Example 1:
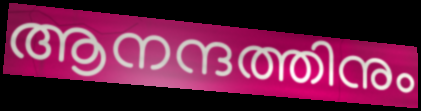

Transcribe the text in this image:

ആനന്ദത്തിനും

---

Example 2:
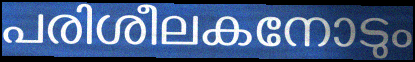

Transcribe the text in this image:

പരിശീലകനോടും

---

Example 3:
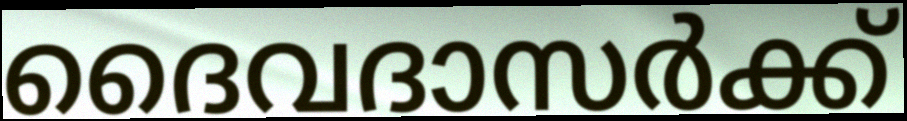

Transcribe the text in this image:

ദൈവദാസർക്ക്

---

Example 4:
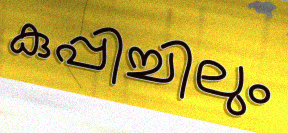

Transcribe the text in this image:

കുപ്പിച്ചിലും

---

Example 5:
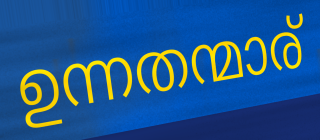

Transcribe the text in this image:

ഉന്നതന്മാര്